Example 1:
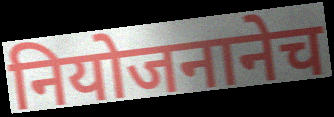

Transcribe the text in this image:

नियोजनानेच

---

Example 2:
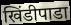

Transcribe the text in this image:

खिंडीपाडा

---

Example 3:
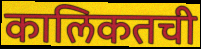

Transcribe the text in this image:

कालिकतची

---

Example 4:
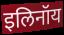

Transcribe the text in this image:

इलिनॉय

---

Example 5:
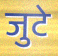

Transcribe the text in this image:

जुटे